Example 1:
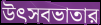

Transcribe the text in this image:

উৎসবভাতার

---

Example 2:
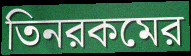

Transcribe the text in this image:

তিনরকমের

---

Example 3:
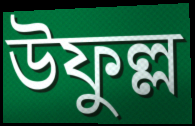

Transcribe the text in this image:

উফুল্ল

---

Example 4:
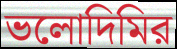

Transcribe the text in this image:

ভলোদিমির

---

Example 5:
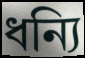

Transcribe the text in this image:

ধন্যি